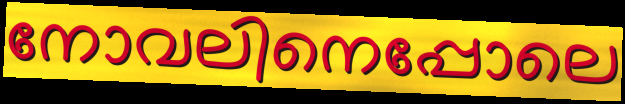
നോവലിനെപ്പോലെ